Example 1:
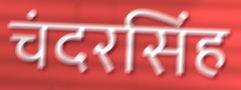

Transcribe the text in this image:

चंदरसिंह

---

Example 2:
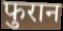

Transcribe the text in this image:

फुरान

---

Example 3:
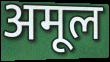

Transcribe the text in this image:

अमूल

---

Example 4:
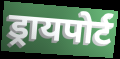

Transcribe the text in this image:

ड्रायपोर्ट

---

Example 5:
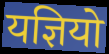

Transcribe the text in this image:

यज्ञियो